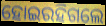
ହୋଇରହିଗଲେ